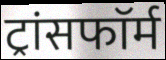
ट्रांसफॉर्म